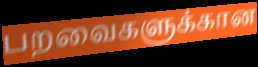
பறவைகளுக்கான